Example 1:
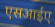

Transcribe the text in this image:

एसआईए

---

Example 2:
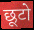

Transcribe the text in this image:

छूटो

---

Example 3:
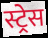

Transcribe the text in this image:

स्ट्रेस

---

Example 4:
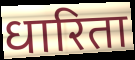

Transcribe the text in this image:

धारिता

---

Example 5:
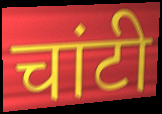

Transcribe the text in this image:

चांटी